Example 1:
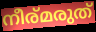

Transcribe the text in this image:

നീര്മരുത്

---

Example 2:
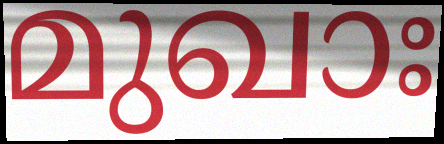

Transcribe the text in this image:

മുഖാഃ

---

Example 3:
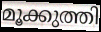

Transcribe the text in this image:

മൂക്കുത്തി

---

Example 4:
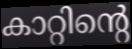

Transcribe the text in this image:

കാറ്റിന്റെ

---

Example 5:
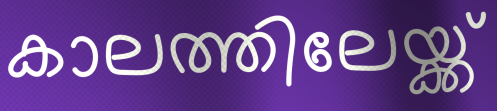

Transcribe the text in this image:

കാലത്തിലേയ്ക്ക്